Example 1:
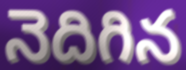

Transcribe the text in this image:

నెదిగిన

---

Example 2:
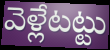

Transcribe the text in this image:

వెళ్లేటట్టు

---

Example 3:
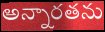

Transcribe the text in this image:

అన్నారతను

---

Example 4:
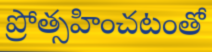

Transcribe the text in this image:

ప్రోత్సహించటంతో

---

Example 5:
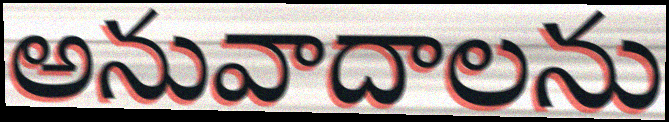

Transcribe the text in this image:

అనువాదాలను